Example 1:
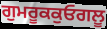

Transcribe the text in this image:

ਗੁਮਰੂਕਕੁਓਗਲੂ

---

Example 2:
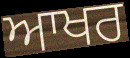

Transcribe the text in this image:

ਆਖਰ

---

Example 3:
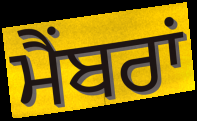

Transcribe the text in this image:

ਮੈਂਬਰਾਂ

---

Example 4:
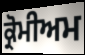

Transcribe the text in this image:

ਕ੍ਰੋਮੀਅਮ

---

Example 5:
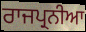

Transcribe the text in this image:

ਰਾਜਪ੍ਰਨੀਆ